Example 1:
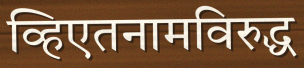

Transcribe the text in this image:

व्हिएतनामविरुद्ध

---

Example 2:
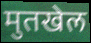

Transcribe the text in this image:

मुतखेल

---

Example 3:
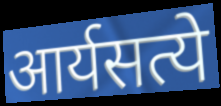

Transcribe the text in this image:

आर्यसत्ये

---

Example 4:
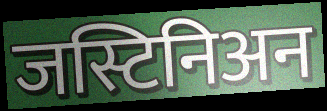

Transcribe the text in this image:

जस्टिनिअन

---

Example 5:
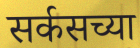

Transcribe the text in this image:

सर्कसच्या